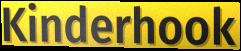
Kinderhook